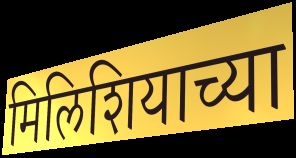
मिलिशियाच्या